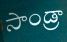
సాండ్రా